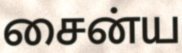
சைன்ய